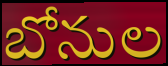
బోనుల